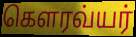
கௌரவ்யர்